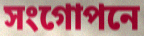
সংগোপনে